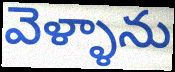
వెళ్ళాను